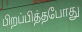
பிறப்பித்தபோது